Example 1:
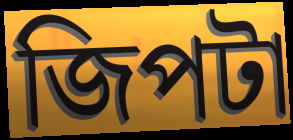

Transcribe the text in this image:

জিপটা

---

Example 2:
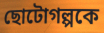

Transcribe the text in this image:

ছোটোগল্পকে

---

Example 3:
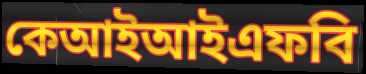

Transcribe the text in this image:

কেআইআইএফবি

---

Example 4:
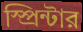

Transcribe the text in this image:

স্প্রিন্টার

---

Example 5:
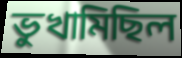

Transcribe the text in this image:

ভুখামিছিল